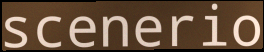
scenerio